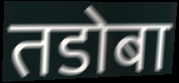
तडोबा